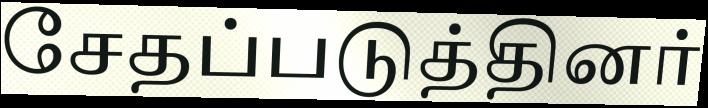
சேதப்படுத்தினர்